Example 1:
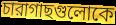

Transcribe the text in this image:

চারাগাছগুলোকে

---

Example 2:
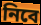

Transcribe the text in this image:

নিবে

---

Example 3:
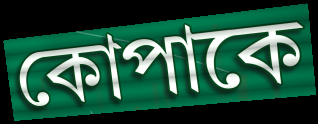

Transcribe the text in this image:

কোপাকে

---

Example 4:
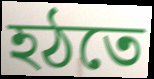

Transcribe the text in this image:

হঠতে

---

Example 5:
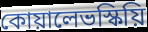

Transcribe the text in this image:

কোয়ালেভস্কিয়ি